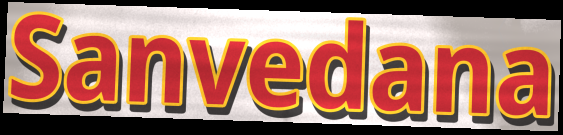
Sanvedana